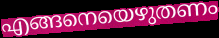
എങ്ങനെയെഴുതണം